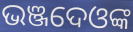
ଭଞ୍ଜଦେଓଙ୍କ